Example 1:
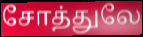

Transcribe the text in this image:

சோத்துலே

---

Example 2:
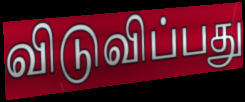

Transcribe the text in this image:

விடுவிப்பது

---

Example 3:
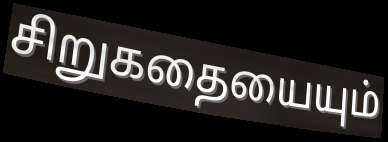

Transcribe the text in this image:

சிறுகதையையும்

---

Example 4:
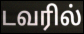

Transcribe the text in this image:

டவரில்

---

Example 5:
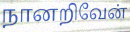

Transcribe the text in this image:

நானறிவேன்